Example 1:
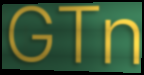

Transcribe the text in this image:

GTn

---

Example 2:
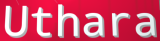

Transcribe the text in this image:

Uthara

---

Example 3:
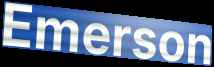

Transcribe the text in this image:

Emerson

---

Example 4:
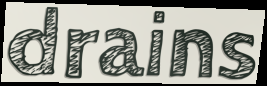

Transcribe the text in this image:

drains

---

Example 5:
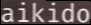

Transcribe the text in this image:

aikido